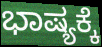
ಭಾಷ್ಯಕ್ಕೆ